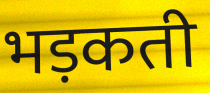
भड़कती